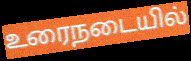
உரைநடையில்